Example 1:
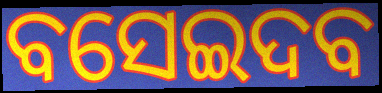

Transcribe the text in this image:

ବସେଇଦବ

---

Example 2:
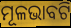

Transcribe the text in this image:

ମୂଳଭାବଟି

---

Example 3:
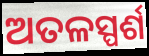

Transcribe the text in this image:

ଅତଳସ୍ପର୍ଶ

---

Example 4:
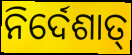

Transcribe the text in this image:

ନିର୍ଦେଶାତ୍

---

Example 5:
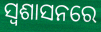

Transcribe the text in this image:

ସ୍ଵଶାସନରେ